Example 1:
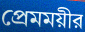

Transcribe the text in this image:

প্রেমময়ীর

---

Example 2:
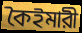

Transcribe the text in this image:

কৈইমারী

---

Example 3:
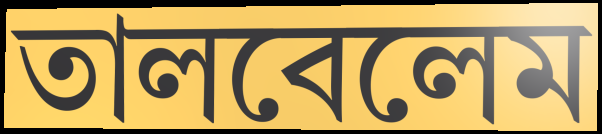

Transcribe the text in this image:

তালবেলেম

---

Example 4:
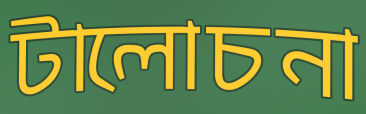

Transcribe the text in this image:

টালোচনা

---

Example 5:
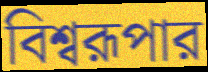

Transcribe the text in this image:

বিশ্বরূপার